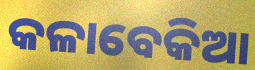
କଳାବେକିଆ